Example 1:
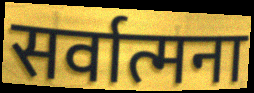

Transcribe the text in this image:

सर्वात्मना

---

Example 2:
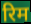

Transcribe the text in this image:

रिम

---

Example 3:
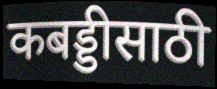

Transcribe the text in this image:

कबड्डीसाठी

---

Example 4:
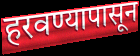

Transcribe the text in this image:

हरवण्यापासून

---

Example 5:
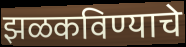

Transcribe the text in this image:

झळकविण्याचे